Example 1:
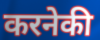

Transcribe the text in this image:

करनेकी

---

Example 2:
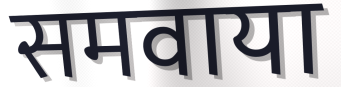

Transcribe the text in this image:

समवाया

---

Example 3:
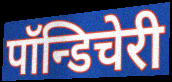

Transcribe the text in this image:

पॉन्डिचेरी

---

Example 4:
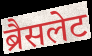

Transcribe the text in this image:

ब्रैसलेट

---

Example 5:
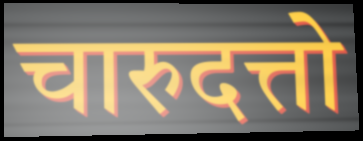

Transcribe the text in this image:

चारुदत्तो